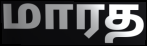
மாரத